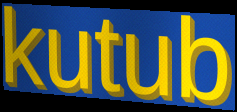
kutub